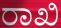
ರಾಖಿ